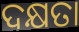
ଦକ୍ଷତା